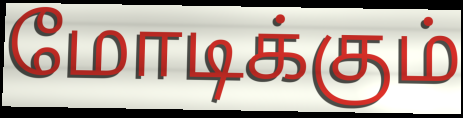
மோடிக்கும்